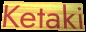
Ketaki